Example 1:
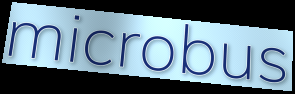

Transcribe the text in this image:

microbus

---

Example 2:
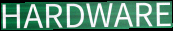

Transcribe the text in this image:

HARDWARE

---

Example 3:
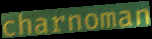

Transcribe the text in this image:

charnoman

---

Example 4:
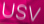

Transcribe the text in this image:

USV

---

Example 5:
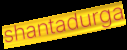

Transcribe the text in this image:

shantadurga